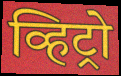
व्हिट्रो